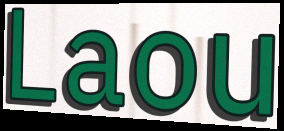
Laou